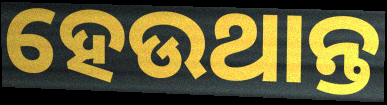
ହେଉଥାନ୍ତ